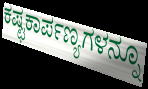
ಕಷ್ಟಕಾರ್ಪಣ್ಯಗಳನ್ನೂ